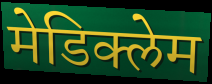
मेडिक्लेम